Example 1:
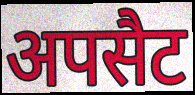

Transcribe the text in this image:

अपसैट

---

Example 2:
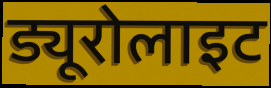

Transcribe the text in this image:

ड्यूरोलाइट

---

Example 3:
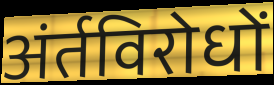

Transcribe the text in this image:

अंर्तविरोधों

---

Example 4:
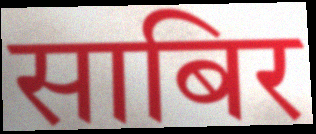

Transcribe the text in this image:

साबिर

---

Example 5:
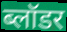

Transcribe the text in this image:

ब्लॉडर